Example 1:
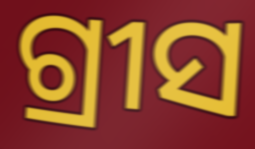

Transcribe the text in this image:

ଗ୍ରୀସ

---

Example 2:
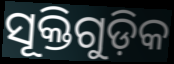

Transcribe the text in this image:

ସୂକ୍ତିଗୁଡ଼ିକ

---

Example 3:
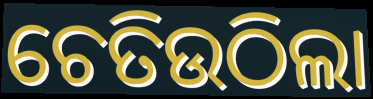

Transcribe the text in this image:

ଚେତିଉଠିଲା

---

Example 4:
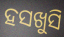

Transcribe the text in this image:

ହସଖୁସି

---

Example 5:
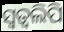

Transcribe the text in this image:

ସ୍ଵତ୍ଵଲିପି